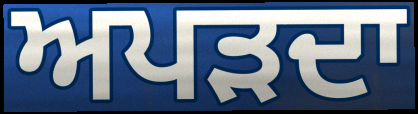
ਅਪੜਦਾ